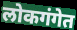
लोकगंगेत